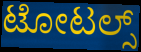
ಟೋಟಲ್ಸ್